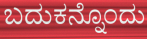
ಬದುಕನ್ನೊಂದು